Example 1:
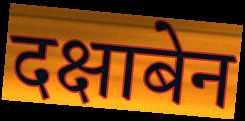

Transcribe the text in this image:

दक्षाबेन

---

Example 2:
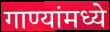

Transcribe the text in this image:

गाण्यांमध्ये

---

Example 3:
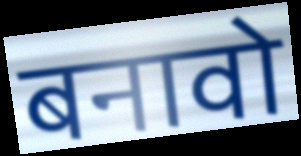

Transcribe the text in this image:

बनावो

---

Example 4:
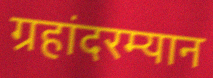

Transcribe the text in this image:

ग्रहांदरम्यान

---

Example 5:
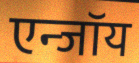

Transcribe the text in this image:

एन्जॉय